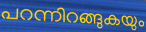
പറന്നിറങ്ങുകയും